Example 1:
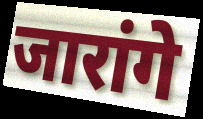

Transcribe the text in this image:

जारांगे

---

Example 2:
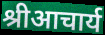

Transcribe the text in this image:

श्रीआचार्य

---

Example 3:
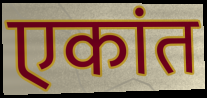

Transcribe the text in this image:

एकांत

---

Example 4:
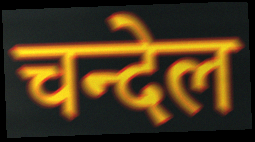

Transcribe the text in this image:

चन्देल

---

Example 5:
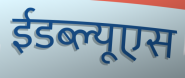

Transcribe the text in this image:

ईडब्ल्यूएस